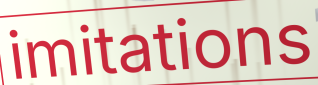
imitations